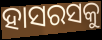
ହାସରସକୁ